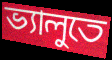
ভ্যালুতে